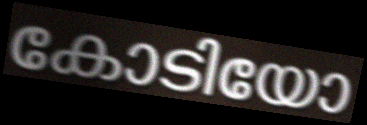
കോടിയോ